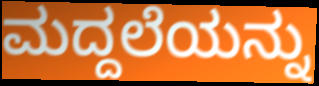
ಮದ್ದಲೆಯನ್ನು